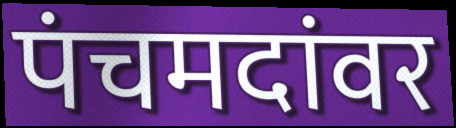
पंचमदांवर